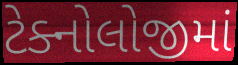
ટેક્નોલોજીમાં